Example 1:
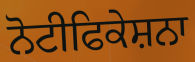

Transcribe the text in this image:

ਨੋਟੀਫਿਕੇਸ਼ਨਾ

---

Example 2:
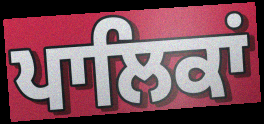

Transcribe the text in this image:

ਪਾਲਿਕਾਂ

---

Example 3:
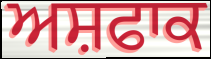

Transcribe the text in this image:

ਅਸ਼ਫਾਕ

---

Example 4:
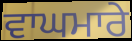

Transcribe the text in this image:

ਵਾਘਮਾਰੇ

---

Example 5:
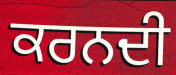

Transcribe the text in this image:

ਕਰਨਦੀ